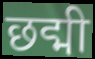
छद्मी